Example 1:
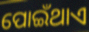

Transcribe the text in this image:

ପୋଇଁଥାଏ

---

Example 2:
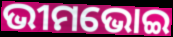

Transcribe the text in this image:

ଭୀମଭୋଇ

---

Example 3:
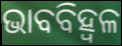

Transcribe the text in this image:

ଭାବବିହ୍ବଳ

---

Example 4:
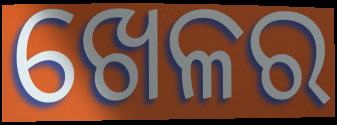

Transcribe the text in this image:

ଖେଳର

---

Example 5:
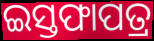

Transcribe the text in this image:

ଇସ୍ତଫାପତ୍ର